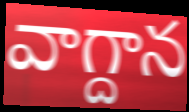
వాగ్దాన